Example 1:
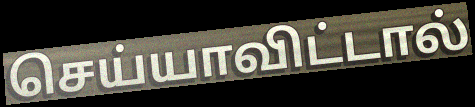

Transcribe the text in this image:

செய்யாவிட்டால்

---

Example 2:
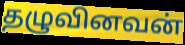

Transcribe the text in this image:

தழுவினவன்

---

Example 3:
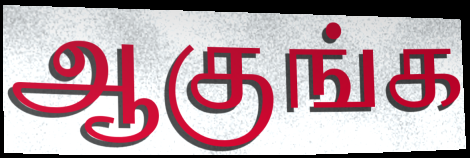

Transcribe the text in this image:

ஆகுங்க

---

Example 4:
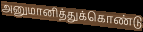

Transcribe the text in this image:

அனுமானித்துக்கொண்டு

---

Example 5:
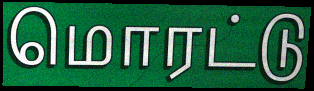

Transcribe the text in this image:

மொரட்டு